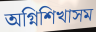
অগ্নিশিখাসম